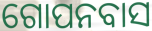
ଗୋପନବାସ